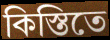
কিস্তিতে